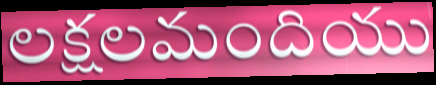
లక్షలమందియు